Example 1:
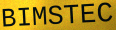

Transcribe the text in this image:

BIMSTEC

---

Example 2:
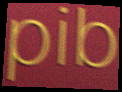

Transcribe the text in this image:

pib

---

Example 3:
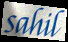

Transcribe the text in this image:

sahil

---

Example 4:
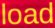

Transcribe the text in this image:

load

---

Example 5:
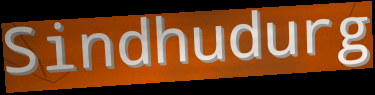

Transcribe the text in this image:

Sindhudurg